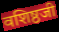
वशिष्ठजी